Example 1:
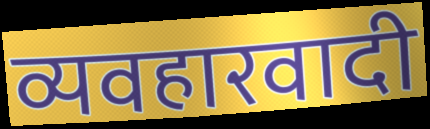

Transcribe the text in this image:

व्यवहारवादी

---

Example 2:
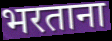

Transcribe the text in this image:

भरताना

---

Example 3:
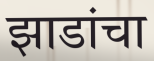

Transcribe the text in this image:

झाडांचा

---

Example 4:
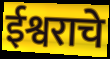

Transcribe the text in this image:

ईश्वराचे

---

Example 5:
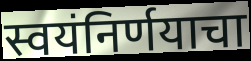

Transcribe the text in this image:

स्वयंनिर्णयाचा